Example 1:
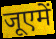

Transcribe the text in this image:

जूएमें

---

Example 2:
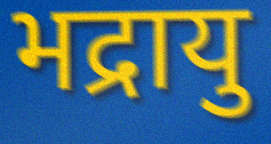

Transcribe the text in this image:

भद्रायु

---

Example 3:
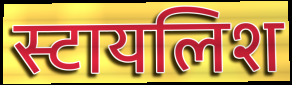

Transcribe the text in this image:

स्टायलिश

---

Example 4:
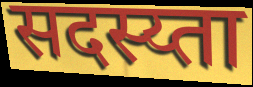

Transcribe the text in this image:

सदस्य्ता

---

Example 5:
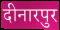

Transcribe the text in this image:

दीनारपुर